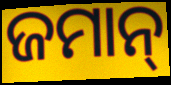
ଜମାନ୍